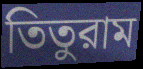
তিতুরাম